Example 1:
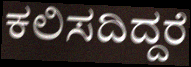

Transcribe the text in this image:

ಕಲಿಸದಿದ್ದರೆ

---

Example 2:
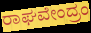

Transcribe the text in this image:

ರಾಘವೇಂದ್ರಂ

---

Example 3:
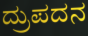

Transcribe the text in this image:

ದ್ರುಪದನ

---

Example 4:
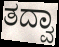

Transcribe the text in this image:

ತದ್ವಾ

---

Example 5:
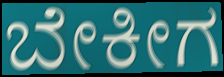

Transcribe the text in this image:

ಬೇಕೀಗ